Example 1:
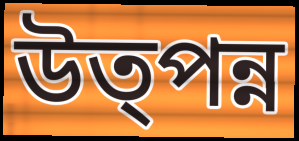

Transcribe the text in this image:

উত্পন্ন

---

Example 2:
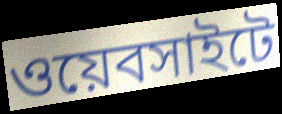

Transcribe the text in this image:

ওয়েবসাইটে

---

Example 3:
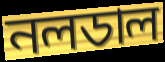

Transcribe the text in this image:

নলডাল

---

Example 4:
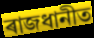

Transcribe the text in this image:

ৰাজধানীত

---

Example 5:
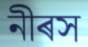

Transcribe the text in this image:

নীৰস